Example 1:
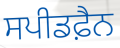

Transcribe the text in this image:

ਸਪੀਡਫ਼ੈਨ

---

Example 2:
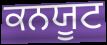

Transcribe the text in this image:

ਕਨਯੂਟ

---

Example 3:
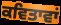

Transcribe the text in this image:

ਕਵਿਤਾਵਾਂ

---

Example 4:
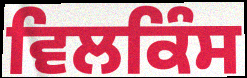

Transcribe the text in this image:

ਵਿਲਕਿੰਸ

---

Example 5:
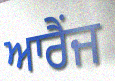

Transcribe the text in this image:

ਆਰੈਂਜ